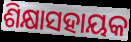
ଶିକ୍ଷାସହାୟକ